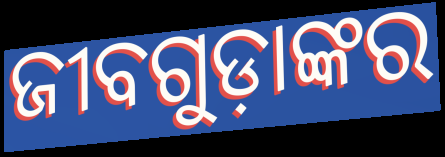
ଜୀବଗୁଡ଼ାଙ୍କର